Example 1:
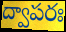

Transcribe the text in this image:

ద్వాపరః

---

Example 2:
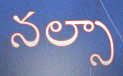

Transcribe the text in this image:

నల్సా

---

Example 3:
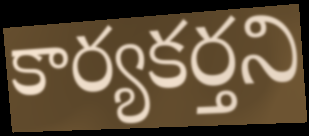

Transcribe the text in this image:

కార్యకర్తని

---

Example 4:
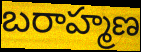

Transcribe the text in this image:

బరాహ్మణ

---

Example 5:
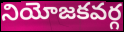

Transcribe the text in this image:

నియోజకవర్గ